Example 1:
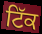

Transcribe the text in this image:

ਟਿੱਕ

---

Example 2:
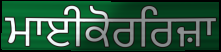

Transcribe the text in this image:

ਮਾਈਕੋਰਰਿਜ਼ਾ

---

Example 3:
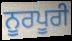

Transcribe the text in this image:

ਨੂਰਪੂਰੀ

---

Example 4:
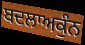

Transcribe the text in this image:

ਬਦਲਾਅਕੁੰਨ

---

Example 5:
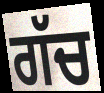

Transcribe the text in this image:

ਗੱਚ